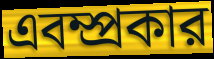
এবম্প্রকার